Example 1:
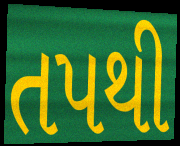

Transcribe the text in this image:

તપથી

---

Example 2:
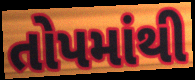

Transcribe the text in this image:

તોપમાંથી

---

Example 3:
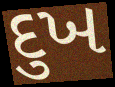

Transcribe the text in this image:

દુખ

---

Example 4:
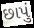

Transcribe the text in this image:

છાપું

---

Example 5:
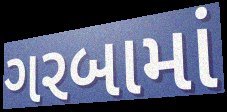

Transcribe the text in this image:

ગરબામાં